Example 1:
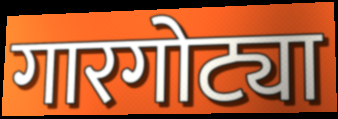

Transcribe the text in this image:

गारगोट्या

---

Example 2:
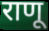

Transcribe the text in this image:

राणू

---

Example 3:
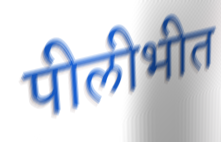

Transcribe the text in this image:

पीलीभीत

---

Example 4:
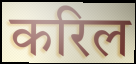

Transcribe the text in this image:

करिल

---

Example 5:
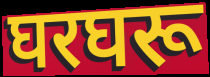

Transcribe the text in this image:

घरघरू